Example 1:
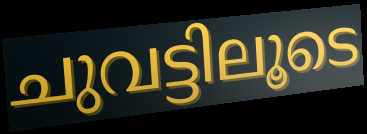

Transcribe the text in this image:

ചുവട്ടിലൂടെ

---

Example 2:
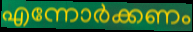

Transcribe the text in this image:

എന്നോർക്കണം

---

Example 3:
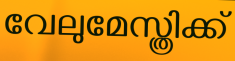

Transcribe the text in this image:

വേലുമേസ്ത്രിക്ക്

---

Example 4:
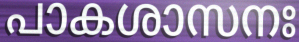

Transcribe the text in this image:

പാകശാസനഃ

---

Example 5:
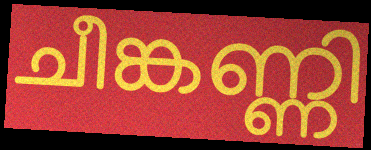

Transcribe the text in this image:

ചീങ്കണ്ണി